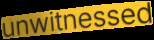
unwitnessed